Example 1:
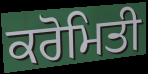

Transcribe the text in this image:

ਕਰੋਮਿਤੀ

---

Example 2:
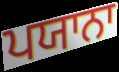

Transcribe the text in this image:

ਪਯਾਨਾ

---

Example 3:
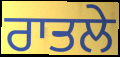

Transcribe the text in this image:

ਰਾਤਲੇ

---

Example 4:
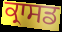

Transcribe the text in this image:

ਕ੍ਰਾਸਡ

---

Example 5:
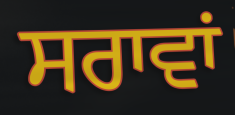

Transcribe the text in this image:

ਸਰਾਵਾਂ